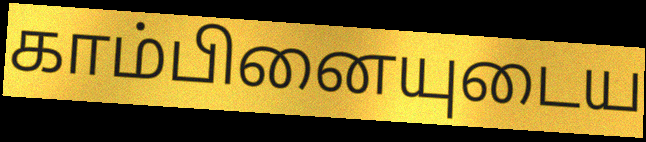
காம்பினையுடைய